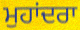
ਮੁਹਾਂਦਰਾ